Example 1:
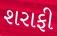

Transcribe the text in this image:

શરાફી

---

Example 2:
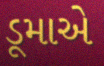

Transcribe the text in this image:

ડૂમાએ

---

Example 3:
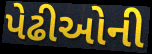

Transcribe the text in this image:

પેઢીઓની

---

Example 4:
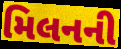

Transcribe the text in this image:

મિલનની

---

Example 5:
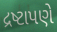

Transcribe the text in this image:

દ્રષ્ટાપણે